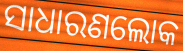
ସାଧାରଣଲୋକ